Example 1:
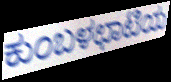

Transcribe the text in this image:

ಕುಂಬಳಛಾಟಿಯ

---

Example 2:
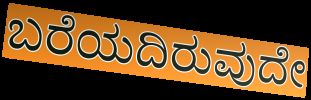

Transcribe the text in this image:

ಬರೆಯದಿರುವುದೇ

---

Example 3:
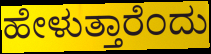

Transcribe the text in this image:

ಹೇಳುತ್ತಾರೆಂದು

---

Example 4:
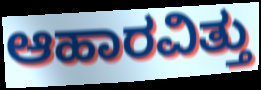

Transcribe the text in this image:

ಆಹಾರವಿತ್ತು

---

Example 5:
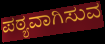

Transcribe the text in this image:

ಪಠ್ಯವಾಗಿಸುವ